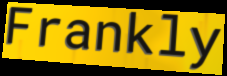
Frankly